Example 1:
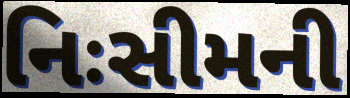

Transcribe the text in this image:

નિઃસીમની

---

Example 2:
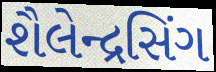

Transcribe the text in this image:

શૈલેન્દ્રસિંગ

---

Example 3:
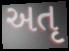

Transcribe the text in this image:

અતૃ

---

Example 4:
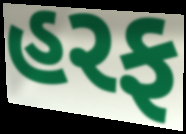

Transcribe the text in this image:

હરફ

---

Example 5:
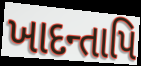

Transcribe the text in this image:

ખાદન્તાપિ